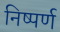
निष्पर्ण